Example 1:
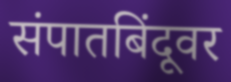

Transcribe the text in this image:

संपातबिंदूवर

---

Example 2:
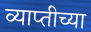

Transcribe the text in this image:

व्याप्तीच्या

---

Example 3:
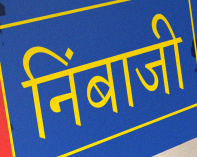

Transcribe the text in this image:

निंबाजी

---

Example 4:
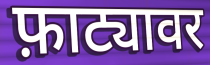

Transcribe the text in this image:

फ़ाट्यावर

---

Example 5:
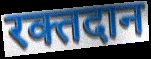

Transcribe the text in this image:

रक्तदान